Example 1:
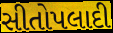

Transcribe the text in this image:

સીતોપલાદી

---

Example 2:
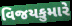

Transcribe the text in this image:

વિજયકુમારે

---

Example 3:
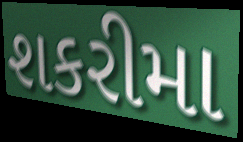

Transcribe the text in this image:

શકરીમા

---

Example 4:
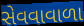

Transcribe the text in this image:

સેવવાવાળા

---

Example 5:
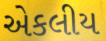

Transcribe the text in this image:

એકલીય